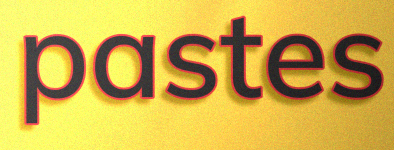
pastes